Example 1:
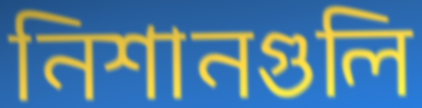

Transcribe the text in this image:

নিশানগুলি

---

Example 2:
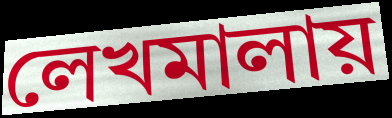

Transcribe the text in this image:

লেখমালায়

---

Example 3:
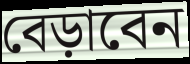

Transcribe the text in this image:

বেড়াবেন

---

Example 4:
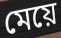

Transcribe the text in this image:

মেয়ে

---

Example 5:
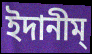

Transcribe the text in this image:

ইদানীম্